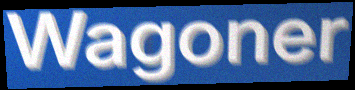
Wagoner